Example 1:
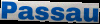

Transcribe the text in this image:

Passau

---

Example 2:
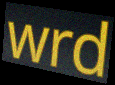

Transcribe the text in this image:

wrd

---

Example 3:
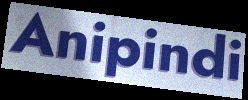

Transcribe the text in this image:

Anipindi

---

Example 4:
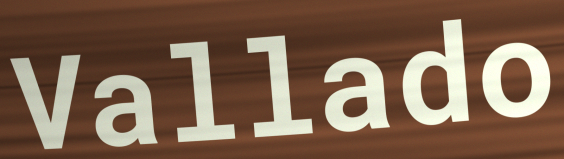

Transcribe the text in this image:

Vallado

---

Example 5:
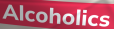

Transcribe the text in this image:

Alcoholics